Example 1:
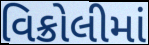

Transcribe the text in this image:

વિક્રોલીમાં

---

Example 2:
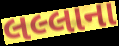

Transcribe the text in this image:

લલ્લાના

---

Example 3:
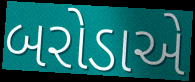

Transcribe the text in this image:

બરોડાએ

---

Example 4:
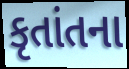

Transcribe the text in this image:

કૃતાંતના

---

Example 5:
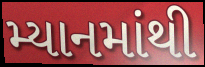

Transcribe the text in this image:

મ્યાનમાંથી